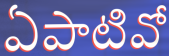
ఏపాటివో